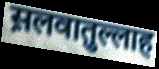
स़लवातुल्लाह